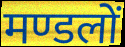
मण्‍डलों